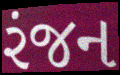
રંજન